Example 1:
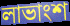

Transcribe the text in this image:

লাভাংশ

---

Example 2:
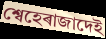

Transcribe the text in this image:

শ্বেহেৰাজাদেই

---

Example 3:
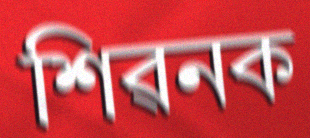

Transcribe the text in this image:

শিৱনক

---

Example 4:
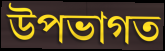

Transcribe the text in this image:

উপভাগত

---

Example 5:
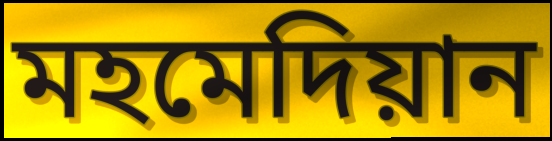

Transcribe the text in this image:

মহমেদিয়ান